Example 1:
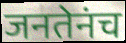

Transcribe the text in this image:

जनतेनंच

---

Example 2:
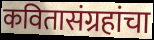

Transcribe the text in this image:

कवितासंग्रहांचा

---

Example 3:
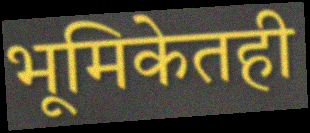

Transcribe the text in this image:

भूमिकेतही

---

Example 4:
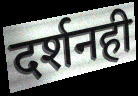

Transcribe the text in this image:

दर्शनही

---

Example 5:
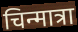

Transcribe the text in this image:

चिन्मात्रा